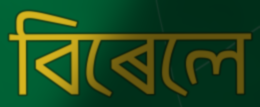
বিৰেলে